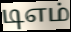
டிஎம்